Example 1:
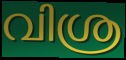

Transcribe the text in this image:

വിശ്ര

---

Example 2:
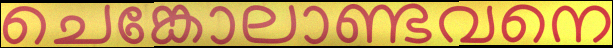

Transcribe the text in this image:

ചെങ്കോലാണ്ടവനെ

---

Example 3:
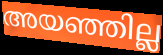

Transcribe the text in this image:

അയഞ്ഞില്ല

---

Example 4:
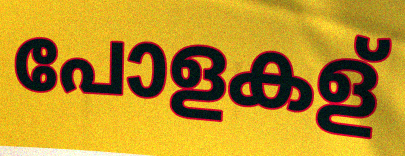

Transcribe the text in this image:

പോളകള്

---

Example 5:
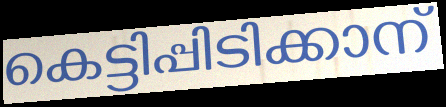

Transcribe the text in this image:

കെട്ടിപ്പിടിക്കാന്